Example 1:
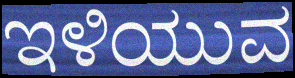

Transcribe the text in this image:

ಇಳಿಯುವ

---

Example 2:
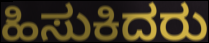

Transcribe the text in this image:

ಹಿಸುಕಿದರು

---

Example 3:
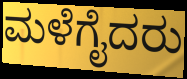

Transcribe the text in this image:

ಮಳೆಗೈದರು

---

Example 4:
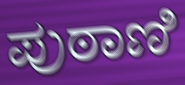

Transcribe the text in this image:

ಪುಠಾಣಿ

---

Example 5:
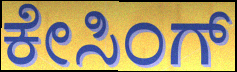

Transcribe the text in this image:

ಕೇಸಿಂಗ್